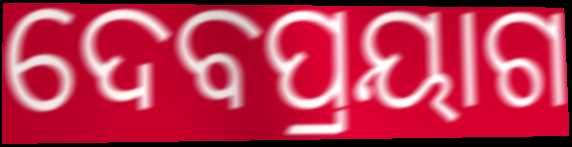
ଦେବପ୍ରୟାଗ